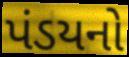
પંડયનો